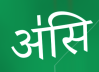
अ॑सि